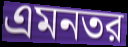
এমনতর